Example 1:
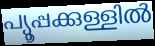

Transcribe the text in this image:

പ്യൂപ്പക്കുള്ളിൽ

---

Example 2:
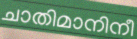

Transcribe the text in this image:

ചാതിമാനിനീ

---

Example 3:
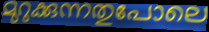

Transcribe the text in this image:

മുറുക്കുന്നതുപോലെ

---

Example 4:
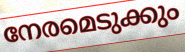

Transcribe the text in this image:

നേരമെടുക്കും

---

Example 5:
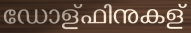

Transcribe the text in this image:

ഡോള്ഫിനുകള്